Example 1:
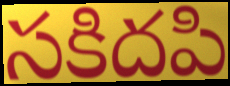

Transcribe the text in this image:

సకిదపి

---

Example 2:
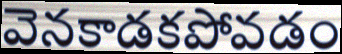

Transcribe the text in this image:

వెనకాడకపోవడం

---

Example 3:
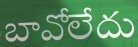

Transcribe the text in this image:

బావోలేదు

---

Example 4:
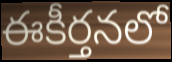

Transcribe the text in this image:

ఈకీర్తనలో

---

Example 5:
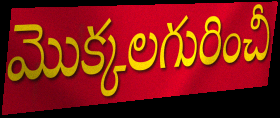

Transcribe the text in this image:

మొక్కలగురించీ